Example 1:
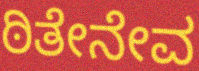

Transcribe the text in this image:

ಠಿತೇನೇವ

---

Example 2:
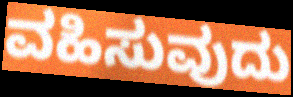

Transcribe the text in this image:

ವಹಿಸುವುದು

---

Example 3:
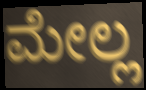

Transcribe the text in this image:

ಮೇಲ್ಲ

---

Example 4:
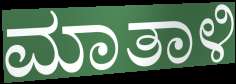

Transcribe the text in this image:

ಮಾತಾಳಿ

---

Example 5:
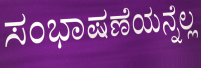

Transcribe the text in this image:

ಸಂಭಾಷಣೆಯನ್ನೆಲ್ಲ